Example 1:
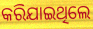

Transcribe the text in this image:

କରିଯାଇଥିଲେ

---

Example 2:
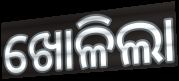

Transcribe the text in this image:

ଖୋଳିଲା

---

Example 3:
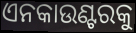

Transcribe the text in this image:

ଏନକାଉଣ୍ଟରକୁ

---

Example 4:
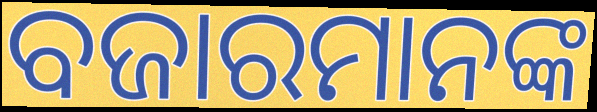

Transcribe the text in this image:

ବଜାରମାନଙ୍କ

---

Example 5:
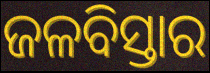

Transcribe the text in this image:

ଜଳବିସ୍ତାର